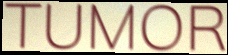
TUMOR